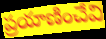
ప్రయాణించేవి